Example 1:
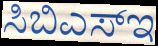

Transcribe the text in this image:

ಸಿಬಿಎಸ್ಇ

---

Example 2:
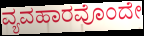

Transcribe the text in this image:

ವ್ಯವಹಾರವೊಂದೇ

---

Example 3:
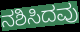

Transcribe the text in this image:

ನಶಿಸಿದವು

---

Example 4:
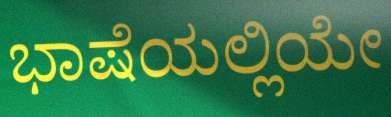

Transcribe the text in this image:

ಭಾಷೆಯಲ್ಲಿಯೇ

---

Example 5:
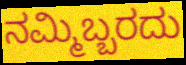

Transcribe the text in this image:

ನಮ್ಮಿಬ್ಬರದು